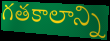
గతకాలాన్ని